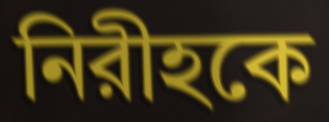
নিরীহকে